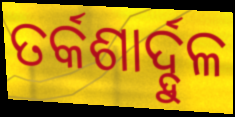
ତର୍କଶାର୍ଦ୍ଦୁଳ